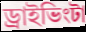
ড্রাইভিংটা